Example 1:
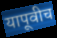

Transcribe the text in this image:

यापूवीच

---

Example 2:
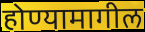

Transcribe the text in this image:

होण्यामागील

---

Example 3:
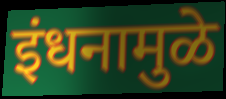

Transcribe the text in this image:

इंधनामुळे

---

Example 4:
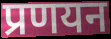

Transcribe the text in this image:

प्रणयन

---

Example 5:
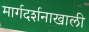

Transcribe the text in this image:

मार्गदर्शनाखाली